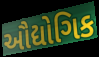
ઔદ્યોગિક